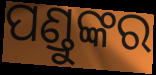
ପଣ୍ଡୁଙ୍କର